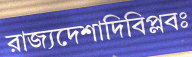
রাজ্যদেশাদিবিপ্লবঃ